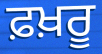
ਫ਼ਖ਼ਰੂ